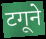
टगूने